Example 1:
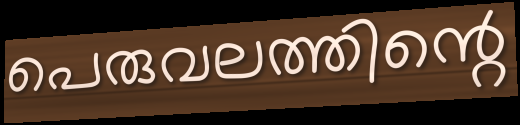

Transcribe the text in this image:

പെരുവലത്തിന്റെ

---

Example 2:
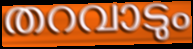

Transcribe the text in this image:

തറവാടും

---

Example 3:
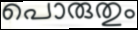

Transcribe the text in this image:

പൊരുതും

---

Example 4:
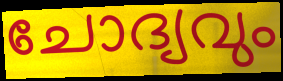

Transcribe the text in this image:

ചോദ്യവും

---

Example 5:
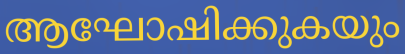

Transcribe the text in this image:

ആഘോഷിക്കുകയും